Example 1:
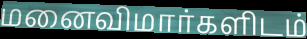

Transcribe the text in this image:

மனைவிமார்களிடம்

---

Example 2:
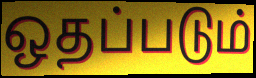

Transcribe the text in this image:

ஒதப்படும்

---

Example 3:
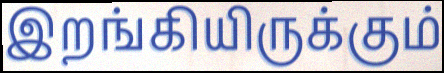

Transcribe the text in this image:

இறங்கியிருக்கும்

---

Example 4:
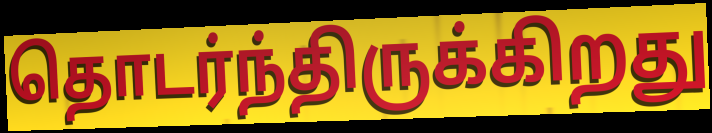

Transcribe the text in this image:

தொடர்ந்திருக்கிறது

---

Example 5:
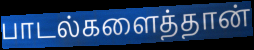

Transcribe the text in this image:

பாடல்களைத்தான்